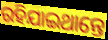
ରହିଯାଇଥାନ୍ତେ